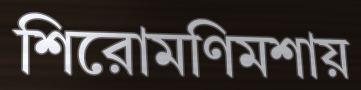
শিরোমণিমশায়